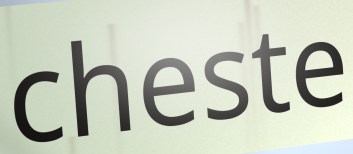
cheste